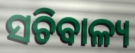
ସଚିବାଳ୍ୟ